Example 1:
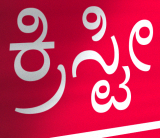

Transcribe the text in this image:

ಕ್ರಿಸ್ಟೀ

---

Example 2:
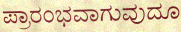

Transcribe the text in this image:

ಪ್ರಾರಂಭವಾಗುವುದೂ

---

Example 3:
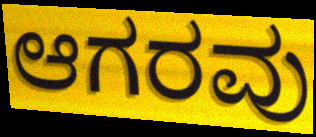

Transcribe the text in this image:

ಆಗರವು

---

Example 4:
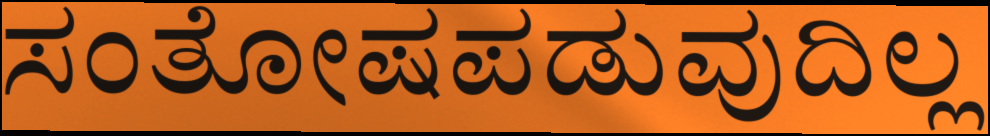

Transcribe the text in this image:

ಸಂತೋಷಪಡುವುದಿಲ್ಲ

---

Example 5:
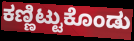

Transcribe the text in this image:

ಕಣ್ಣಿಟ್ಟುಕೊಂಡು